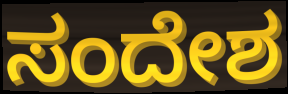
ಸಂದೇಶ